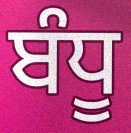
ਬੰਧੂ